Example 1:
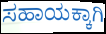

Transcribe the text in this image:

ಸಹಾಯಕ್ಕಾಗಿ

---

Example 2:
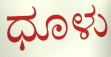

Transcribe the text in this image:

ಧೂಳು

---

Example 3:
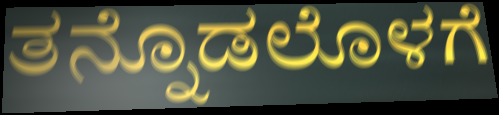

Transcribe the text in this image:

ತನ್ನೊಡಲೊಳಗೆ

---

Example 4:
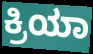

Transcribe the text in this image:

ಕ್ರಿಯಾ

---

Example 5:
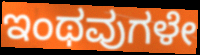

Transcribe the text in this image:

ಇಂಥವುಗಳೇ